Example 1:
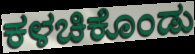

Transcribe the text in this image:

ಕಳಚಿಕೊಂಡು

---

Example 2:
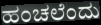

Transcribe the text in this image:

ಹಂಚಲೆಂದು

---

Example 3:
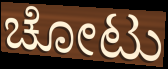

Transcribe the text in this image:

ಚೋಟು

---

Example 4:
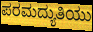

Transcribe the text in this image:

ಪರಮದ್ಯುತಿಯು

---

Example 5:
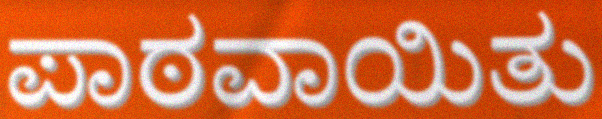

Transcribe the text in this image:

ಪಾಠವಾಯಿತು